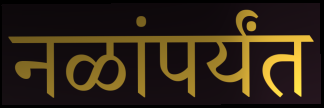
नळांपर्यंत